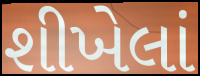
શીખેલાં